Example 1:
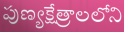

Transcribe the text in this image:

పుణ్యక్షేత్రాలలోని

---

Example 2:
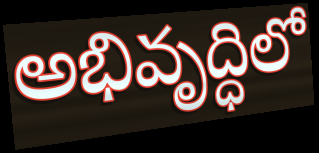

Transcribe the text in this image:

అభివృద్ధిలో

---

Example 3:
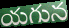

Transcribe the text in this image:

యగున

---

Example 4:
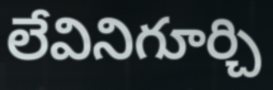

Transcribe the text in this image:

లేవినిగూర్చి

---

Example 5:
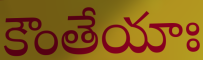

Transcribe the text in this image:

కౌంతేయాః